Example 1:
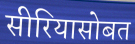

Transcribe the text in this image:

सीरियासोबत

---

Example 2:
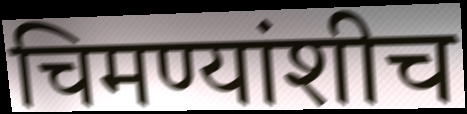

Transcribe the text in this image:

चिमण्यांशीच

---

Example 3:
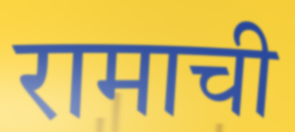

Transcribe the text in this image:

रामाची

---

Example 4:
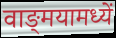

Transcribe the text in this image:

वाङ्‌मयामध्यें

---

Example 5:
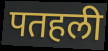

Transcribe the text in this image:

पतहली